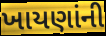
ખાયણાંની